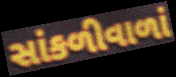
સાંકળીવાળાં